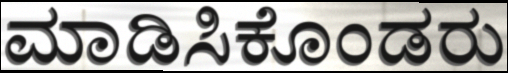
ಮಾಡಿಸಿಕೊಂಡರು